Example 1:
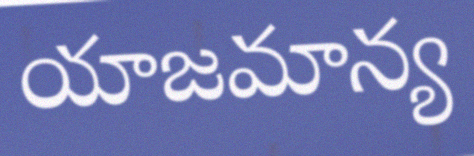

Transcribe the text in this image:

యాజమాన్య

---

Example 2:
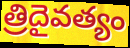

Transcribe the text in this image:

త్రిదైవత్యం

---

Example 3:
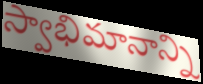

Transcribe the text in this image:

స్వాభిమానాన్ని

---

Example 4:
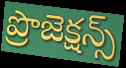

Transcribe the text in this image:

ప్రొజెక్షన్స్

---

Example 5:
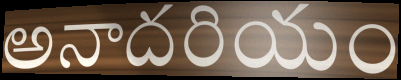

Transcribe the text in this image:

అనాదరియం